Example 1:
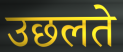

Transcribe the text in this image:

उछलते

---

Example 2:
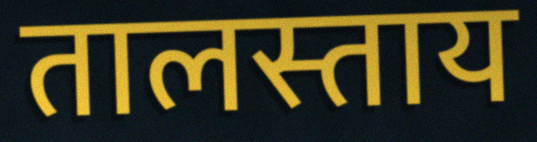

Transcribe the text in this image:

तालस्ताय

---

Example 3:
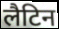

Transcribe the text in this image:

लैटिन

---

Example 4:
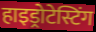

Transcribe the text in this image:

हाइड्रोटेस्टिंग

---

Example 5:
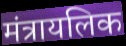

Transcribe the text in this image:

मंत्रायलिक